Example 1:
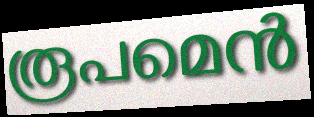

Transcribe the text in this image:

രൂപമെൻ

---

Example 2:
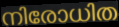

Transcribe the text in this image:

നിരോധിത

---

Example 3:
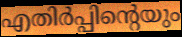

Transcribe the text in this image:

എതിർപ്പിന്റെയും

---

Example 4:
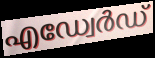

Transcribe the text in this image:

എഡ്വേർഡ്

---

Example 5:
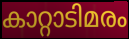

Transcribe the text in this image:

കാറ്റാടിമരം